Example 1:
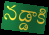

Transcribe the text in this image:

నడ్డాకి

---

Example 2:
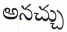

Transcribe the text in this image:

అనచ్చు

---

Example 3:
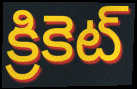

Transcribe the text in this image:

క్రికెట్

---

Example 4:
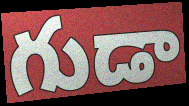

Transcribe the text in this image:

గుడా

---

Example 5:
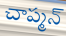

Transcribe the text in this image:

చాప్మన్